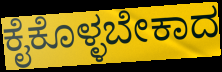
ಕೈಕೊಳ್ಳಬೇಕಾದ